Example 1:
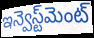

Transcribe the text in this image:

ఇన్వెస్ట్‌మెంట్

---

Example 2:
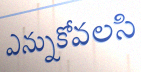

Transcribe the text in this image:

ఎన్నుకోవలసి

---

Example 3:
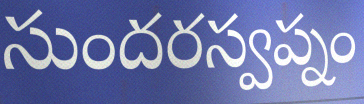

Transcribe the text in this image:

సుందరస్వప్నం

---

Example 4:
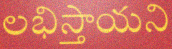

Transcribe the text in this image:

లభిస్తాయని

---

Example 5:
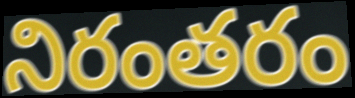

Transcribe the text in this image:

నిరంతరం